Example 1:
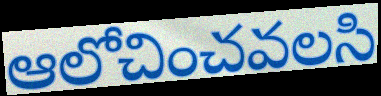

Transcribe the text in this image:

ఆలోచించవలసి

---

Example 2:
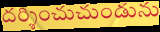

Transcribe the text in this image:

దర్శించుచుండును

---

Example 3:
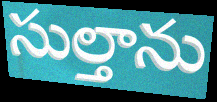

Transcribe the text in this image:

సుల్తాను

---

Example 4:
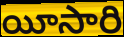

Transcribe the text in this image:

యీసారి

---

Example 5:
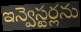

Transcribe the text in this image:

ఇన్వెస్టర్లను